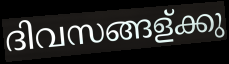
ദിവസങ്ങള്ക്കു